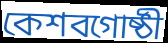
কেশবগোষ্ঠী